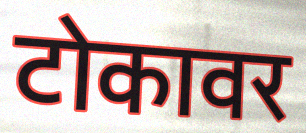
टोकावर